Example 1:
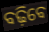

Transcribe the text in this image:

ବଢ଼ିବେ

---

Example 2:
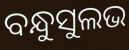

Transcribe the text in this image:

ବନ୍ଧୁସୁଲଭ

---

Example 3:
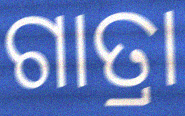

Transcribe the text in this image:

ଗାତ୍ରା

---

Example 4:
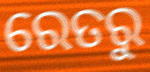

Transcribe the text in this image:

ରେତରୁ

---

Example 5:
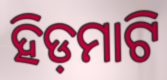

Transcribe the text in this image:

ହିଡ଼ମାଟି